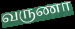
வருணா